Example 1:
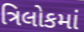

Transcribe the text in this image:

ત્રિલોકમાં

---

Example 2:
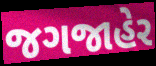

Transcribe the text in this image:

જગજાહેર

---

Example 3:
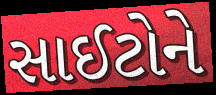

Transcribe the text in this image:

સાઈટોને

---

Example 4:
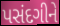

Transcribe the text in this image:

પસંદગીને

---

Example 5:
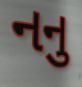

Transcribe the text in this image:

નનુ